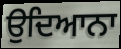
ਉਦਿਆਨਾ